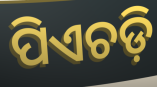
ପିଏଚଡ଼ି